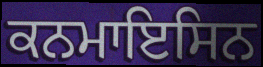
ਕਨਮਾਇਸਿਨ